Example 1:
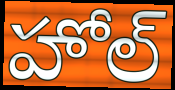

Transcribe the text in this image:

హోల్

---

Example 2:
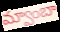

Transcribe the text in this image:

మ్వాంబా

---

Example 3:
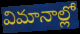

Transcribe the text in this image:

విమానాల్లో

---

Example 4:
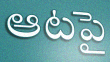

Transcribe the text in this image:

ఆటపై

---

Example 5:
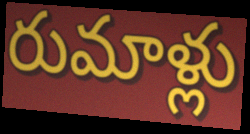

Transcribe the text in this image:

రుమాళ్లు